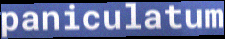
paniculatum